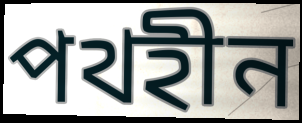
পথহীন